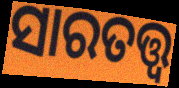
ସାରତତ୍ତ୍ୱ